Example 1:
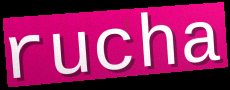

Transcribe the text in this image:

rucha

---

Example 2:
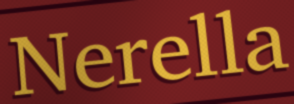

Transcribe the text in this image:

Nerella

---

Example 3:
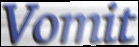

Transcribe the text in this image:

Vomit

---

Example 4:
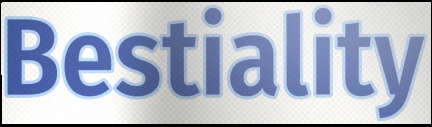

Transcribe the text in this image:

Bestiality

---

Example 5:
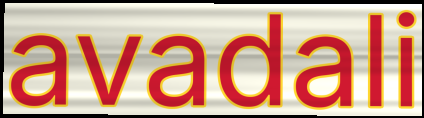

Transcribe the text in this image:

avadali